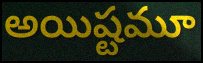
అయిష్టమూ